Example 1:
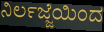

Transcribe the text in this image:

ನಿರ್ಲಜ್ಜೆಯಿಂದ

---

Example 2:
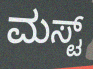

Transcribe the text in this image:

ಮಸ್ಟ್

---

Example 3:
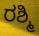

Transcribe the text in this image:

ರಶ್ಮಿ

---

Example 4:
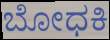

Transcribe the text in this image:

ಬೋಧಕಿ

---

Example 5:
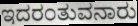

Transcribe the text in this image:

ಇದರಂತುವನಾರು